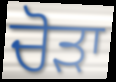
ਚੋੜਾ